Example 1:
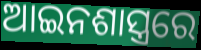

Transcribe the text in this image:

ଆଇନଶାସ୍ତ୍ରରେ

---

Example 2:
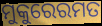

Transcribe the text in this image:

ମୁକୁରେରମତ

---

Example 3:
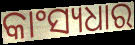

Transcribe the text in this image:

କାଂସ୍ୟଧାର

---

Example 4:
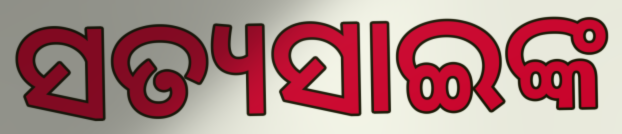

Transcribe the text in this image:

ସତ୍ୟସାଇଙ୍କ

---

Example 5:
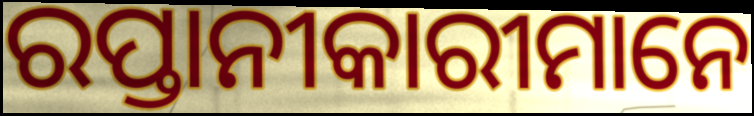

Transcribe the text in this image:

ରପ୍ତାନୀକାରୀମାନେ